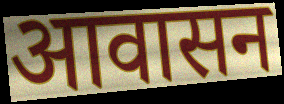
आवासन